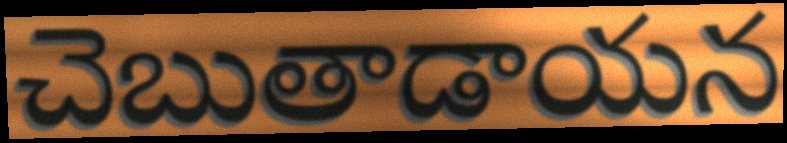
చెబుతాడాయన